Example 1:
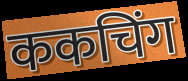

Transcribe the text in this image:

ककचिंग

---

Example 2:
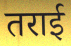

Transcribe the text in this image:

तराई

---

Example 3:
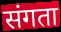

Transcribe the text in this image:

संगता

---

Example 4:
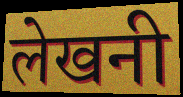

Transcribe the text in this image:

लेखनी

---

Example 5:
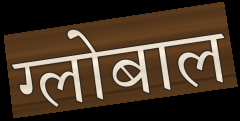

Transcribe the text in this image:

ग्लोबाल